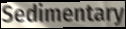
Sedimentary